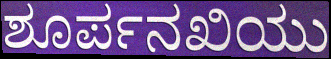
ಶೂರ್ಪನಖಿಯು